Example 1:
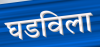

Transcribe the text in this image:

घडविला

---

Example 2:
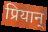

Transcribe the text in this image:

प्रियान्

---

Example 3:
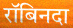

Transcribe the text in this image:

रॉबिनदा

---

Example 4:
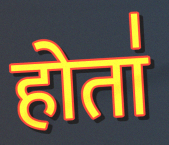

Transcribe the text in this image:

होता॑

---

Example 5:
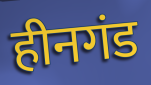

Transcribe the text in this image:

हीनगंड